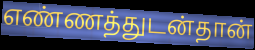
எண்ணத்துடன்தான்